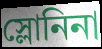
স্লোনিনা